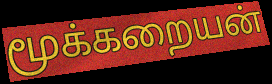
மூக்கறையன்